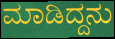
ಮಾಡಿದ್ದನು